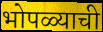
भोपळ्याची